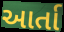
આર્તા